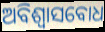
ଅବିଶ୍ୱାସବୋଧ